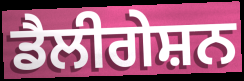
ਡੈਲੀਗੇਸ਼ਨ